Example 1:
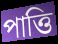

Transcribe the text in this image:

পাত্তি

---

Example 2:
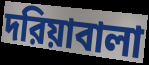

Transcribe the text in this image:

দরিয়াবালা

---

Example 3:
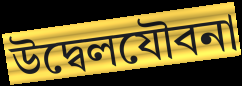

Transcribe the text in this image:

উদ্বেলযৌবনা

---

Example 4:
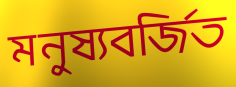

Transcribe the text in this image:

মনুষ্যবর্জিত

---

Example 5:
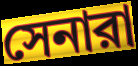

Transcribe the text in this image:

সেনারা